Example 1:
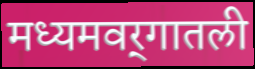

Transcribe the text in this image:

मध्यमवर्गातली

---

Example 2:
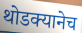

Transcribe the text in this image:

थोडक्यानेच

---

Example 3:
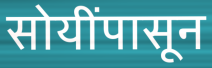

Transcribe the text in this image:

सोयींपासून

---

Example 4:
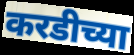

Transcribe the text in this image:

करडीच्या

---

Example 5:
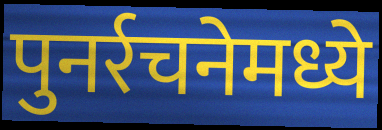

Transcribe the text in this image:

पुनर्रचनेमध्ये